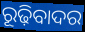
ରୂଢ଼ିବାଦର